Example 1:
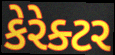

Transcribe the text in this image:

કેરેક્ટર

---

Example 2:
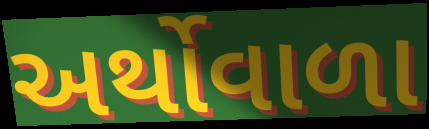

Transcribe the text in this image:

અર્થોવાળા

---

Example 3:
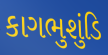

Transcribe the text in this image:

કાગભુશુંડિ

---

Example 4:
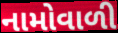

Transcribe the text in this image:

નામોવાળી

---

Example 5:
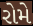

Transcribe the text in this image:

રોમે